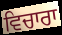
ਵਿਚਾਰਾ